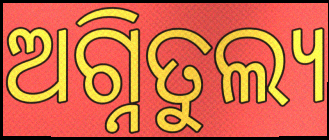
ଅଗ୍ନିତୁଲ୍ୟ